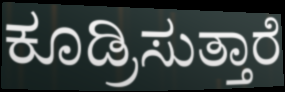
ಕೂಡ್ರಿಸುತ್ತಾರೆ